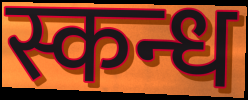
स्कन्ध